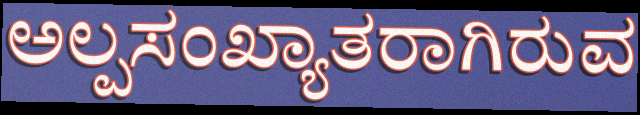
ಅಲ್ಪಸಂಖ್ಯಾತರಾಗಿರುವ